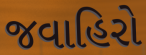
જવાહિરો